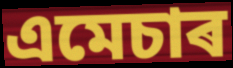
এমেচাৰ